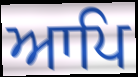
ਆਪਿ